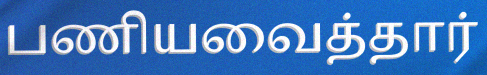
பணியவைத்தார்